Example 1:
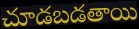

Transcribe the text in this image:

చూడబడతాయి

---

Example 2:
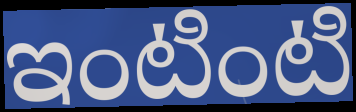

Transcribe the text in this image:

ఇంటింటి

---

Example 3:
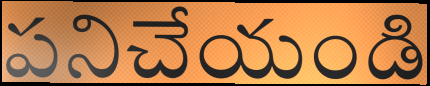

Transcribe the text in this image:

పనిచేయండి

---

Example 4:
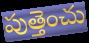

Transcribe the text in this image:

పుత్తెంచు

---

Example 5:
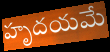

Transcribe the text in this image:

హృదయమే